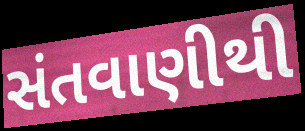
સંતવાણીથી